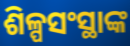
ଶିଳ୍ପସଂସ୍ଥାଙ୍କ